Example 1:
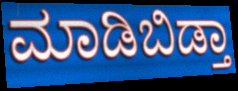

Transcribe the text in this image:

ಮಾಡಿಬಿಡ್ತಾ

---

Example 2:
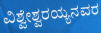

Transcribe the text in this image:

ವಿಶ್ವೇಶ್ವರಯ್ಯನವರ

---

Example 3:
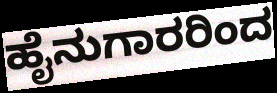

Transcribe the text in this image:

ಹೈನುಗಾರರಿಂದ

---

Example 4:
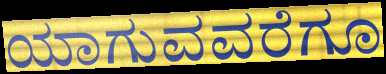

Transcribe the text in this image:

ಯಾಗುವವರೆಗೂ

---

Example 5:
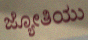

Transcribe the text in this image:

ಜ್ಯೋತಿಯು